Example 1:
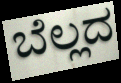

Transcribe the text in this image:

ಬೆಲ್ಲದ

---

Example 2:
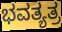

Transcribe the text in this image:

ಭವತ್ಯತ್ರ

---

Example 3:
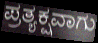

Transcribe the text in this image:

ಪ್ರತ್ಯಕ್ಷವಾಗು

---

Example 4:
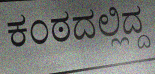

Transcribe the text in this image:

ಕಂಠದಲ್ಲಿದ್ದ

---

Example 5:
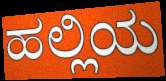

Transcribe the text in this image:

ಹಲ್ಲಿಯ